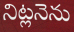
నిట్లనెను